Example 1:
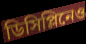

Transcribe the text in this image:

ডিসিপ্লিনেও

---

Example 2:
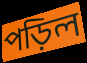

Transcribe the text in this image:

পড়িল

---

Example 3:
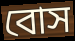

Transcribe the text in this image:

বোস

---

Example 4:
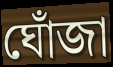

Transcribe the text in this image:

ঘোঁজা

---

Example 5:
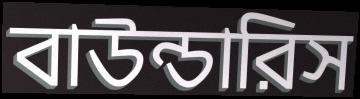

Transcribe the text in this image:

বাউন্ডারিস